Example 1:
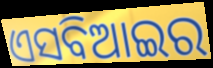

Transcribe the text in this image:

ଏସବିଆଇର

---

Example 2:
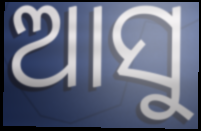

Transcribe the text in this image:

ଆସୁ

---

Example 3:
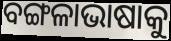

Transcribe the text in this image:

ବଙ୍ଗଳାଭାଷାକୁ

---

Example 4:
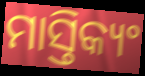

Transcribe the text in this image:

ମାସ୍ତିକ୍ୟଂ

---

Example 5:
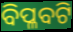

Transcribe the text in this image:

ବିପ୍ଳବଟି